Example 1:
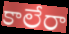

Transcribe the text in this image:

కాలేరా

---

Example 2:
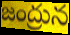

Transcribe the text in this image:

జంద్రున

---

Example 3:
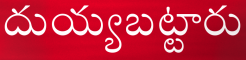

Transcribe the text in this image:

దుయ్యబట్టారు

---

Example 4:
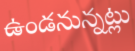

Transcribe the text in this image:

ఉండనున్నట్లు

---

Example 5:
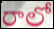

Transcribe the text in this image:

రాలో